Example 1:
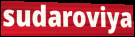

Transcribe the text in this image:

sudaroviya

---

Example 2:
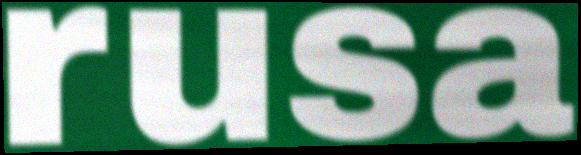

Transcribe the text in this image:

rusa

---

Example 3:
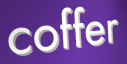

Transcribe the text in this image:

coffer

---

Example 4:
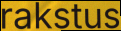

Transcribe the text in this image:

rakstus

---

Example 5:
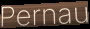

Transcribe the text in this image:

Pernau